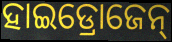
ହାଇଡ୍ରୋଜେନ୍